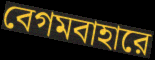
বেগমবাহারে